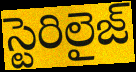
స్టెరిలైజ్